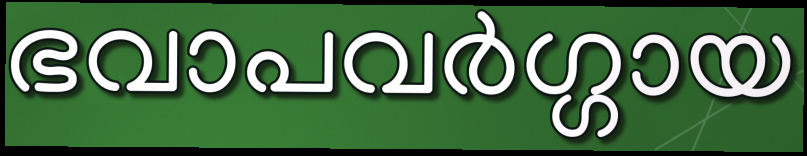
ഭവാപവർഗ്ഗായ